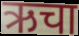
ऋचा